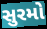
સુરમો